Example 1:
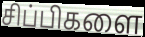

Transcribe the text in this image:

சிப்பிகளை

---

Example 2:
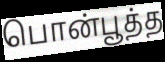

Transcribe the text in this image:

பொன்பூத்த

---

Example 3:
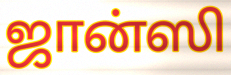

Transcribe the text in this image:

ஜான்ஸி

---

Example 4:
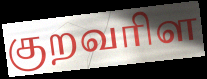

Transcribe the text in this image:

குறவரிள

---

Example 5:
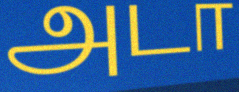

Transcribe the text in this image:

அடா